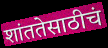
शांततेसाठीचं